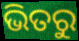
ଭିତରୁ